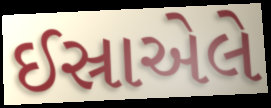
ઈસ્રાએલે